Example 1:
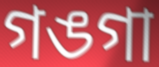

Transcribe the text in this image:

গঙগা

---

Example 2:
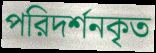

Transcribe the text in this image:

পরিদর্শনকৃত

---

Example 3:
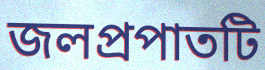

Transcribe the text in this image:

জলপ্রপাতটি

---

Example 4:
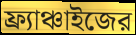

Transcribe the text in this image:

ফ্র্যাঞ্চাইজের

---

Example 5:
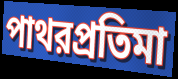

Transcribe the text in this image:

পাথরপ্রতিমা